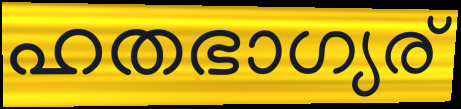
ഹതഭാഗ്യര്